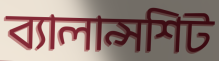
ব্যালান্সশিট